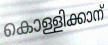
കൊള്ളിക്കാന്